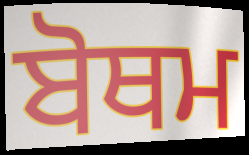
ਬੋਥਮ